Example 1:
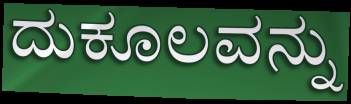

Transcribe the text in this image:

ದುಕೂಲವನ್ನು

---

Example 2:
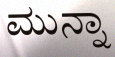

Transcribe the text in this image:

ಮುನ್ನಾ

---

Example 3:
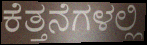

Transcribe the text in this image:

ಕೆತ್ತನೆಗಳಲ್ಲಿ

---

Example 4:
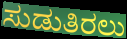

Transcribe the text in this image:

ಸುಡುತಿರಲು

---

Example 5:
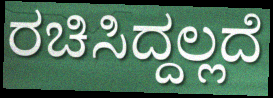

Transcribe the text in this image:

ರಚಿಸಿದ್ದಲ್ಲದೆ